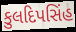
કુલદિપસિંહ